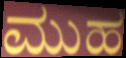
ಮುಹ